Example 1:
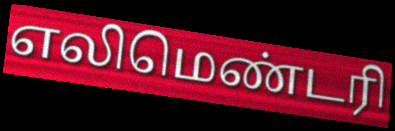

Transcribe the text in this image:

எலிமெண்டரி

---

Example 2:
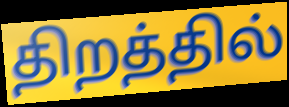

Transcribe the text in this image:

திறத்தில்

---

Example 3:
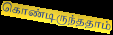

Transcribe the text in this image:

கொண்டிருந்ததாம்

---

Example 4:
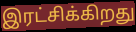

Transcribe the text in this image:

இரட்சிக்கிறது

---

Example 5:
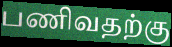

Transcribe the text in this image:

பணிவதற்கு